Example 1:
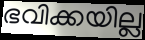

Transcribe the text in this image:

ഭവിക്കയില്ല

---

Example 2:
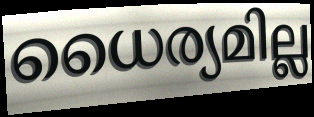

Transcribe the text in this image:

ധൈര്യമില്ല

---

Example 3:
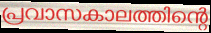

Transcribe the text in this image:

പ്രവാസകാലത്തിന്റെ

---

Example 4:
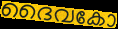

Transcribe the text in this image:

ദൈവകോ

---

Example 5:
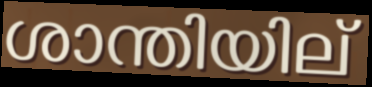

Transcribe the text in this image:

ശാന്തിയില്